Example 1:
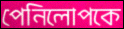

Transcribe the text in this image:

পেনিলোপকে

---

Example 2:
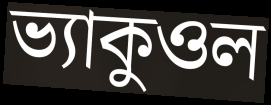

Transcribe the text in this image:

ভ্যাকুওল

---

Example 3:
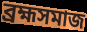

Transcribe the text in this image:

ব্রহ্মসমাজ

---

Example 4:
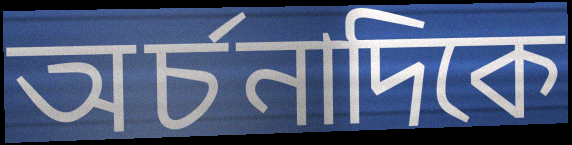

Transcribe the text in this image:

অর্চনাদিকে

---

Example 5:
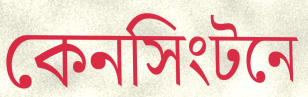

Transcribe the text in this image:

কেনসিংটনে